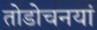
तोडोचनयां